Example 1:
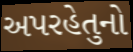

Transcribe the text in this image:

અપરહેતુનો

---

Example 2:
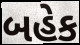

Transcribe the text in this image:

બહેક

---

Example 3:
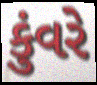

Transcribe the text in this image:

કુંવરે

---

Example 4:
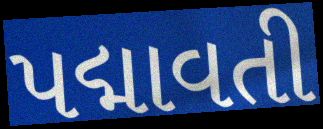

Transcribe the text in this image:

પદ્માવતી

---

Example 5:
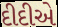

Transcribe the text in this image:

દીદીએ